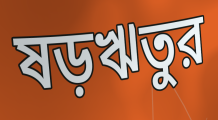
ষড়ঋতুর